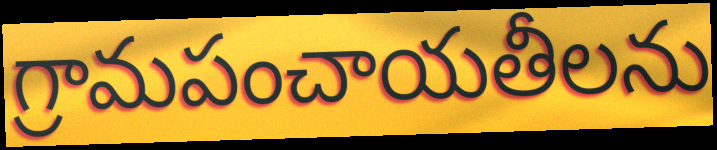
గ్రామపంచాయతీలను